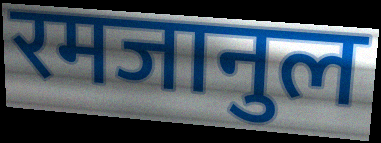
रमजानुल